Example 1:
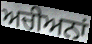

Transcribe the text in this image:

ਅਚੀਅਨਾਂ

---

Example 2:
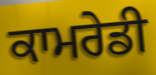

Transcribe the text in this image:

ਕਾਮਰੇਡੀ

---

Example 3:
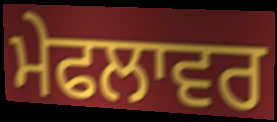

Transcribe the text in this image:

ਮੇਫਲਾਵਰ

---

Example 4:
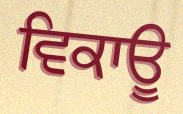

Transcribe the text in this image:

ਵਿਕਾਊ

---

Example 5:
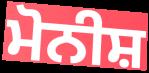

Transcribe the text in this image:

ਮੋਨੀਸ਼